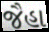
જૈહા